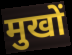
मुखों